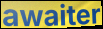
awaiter